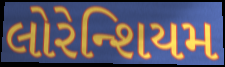
લોરેન્શિયમ